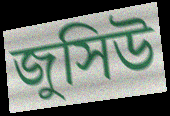
জুসিউ